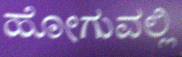
ಹೋಗುವಲ್ಲಿ